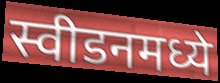
स्वीडनमध्ये